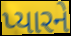
પ્યારને